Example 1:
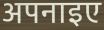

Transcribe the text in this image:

अपनाइए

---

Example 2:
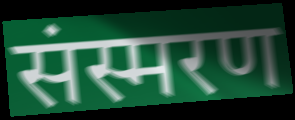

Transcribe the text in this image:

संस्मरण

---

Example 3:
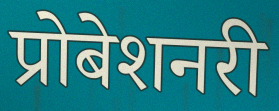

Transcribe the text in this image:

प्रोबेशनरी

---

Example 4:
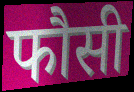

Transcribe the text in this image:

फौसी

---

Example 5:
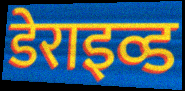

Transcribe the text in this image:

डेराइव्ड